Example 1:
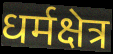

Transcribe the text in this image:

धर्मक्षेत्र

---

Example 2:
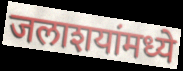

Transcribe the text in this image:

जलाशयांमध्ये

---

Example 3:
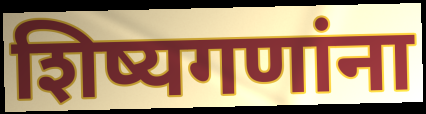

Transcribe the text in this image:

शिष्यगणांना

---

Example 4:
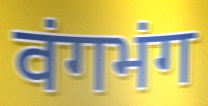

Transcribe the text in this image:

वंगभंग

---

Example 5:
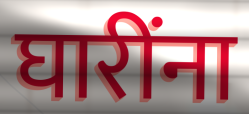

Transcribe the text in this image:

घारींना